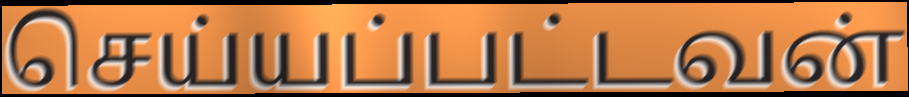
செய்யப்பட்டவன்